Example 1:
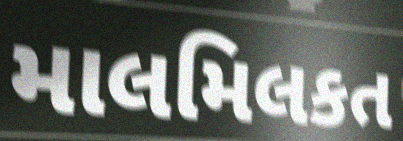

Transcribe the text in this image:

માલમિલકત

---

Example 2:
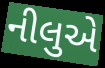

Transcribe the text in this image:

નીલુએ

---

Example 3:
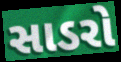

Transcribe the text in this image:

સાડરો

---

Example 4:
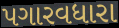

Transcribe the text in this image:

પગારવધારા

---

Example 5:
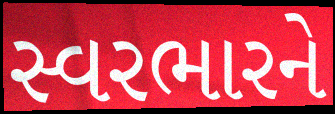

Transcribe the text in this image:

સ્વરભારને